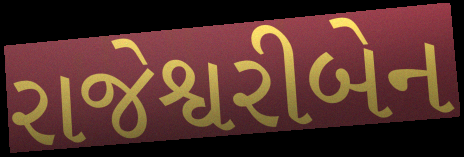
રાજેશ્વરીબેન